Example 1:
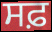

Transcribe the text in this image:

ਸਫ਼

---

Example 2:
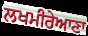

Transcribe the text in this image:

ਲਖਮੀਰੇਆਣਾ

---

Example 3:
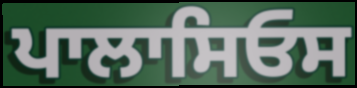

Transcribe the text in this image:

ਪਾਲਾਸਿਓਸ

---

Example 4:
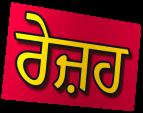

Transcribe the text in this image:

ਰੇਜ਼ਹ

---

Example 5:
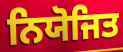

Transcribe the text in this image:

ਨਿਯੋਜਿਤ